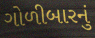
ગોળીબારનું